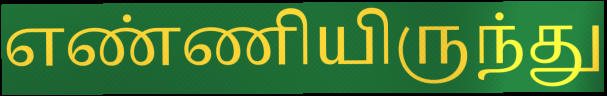
எண்ணியிருந்து